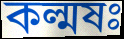
কল্মষঃ